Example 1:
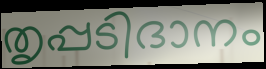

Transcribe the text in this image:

തൃപ്പടിദാനം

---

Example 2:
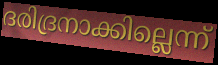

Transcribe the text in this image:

ദരിദ്രനാക്കില്ലെന്ന്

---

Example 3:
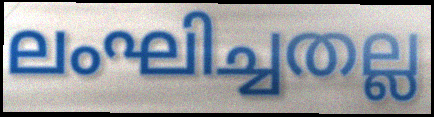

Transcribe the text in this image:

ലംഘിച്ചതല്ല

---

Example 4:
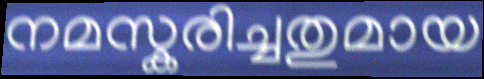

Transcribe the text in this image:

നമസ്കരിച്ചതുമായ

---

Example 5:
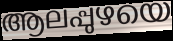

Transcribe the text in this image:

ആലപ്പുഴയെ